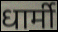
धार्मी